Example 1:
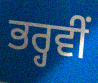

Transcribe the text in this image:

ਭਰ੍ਹਵੀਂ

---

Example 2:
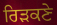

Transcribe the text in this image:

ਰਿੜਕਣੇ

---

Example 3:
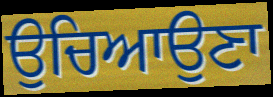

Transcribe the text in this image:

ਉਚਿਆਉਣਾ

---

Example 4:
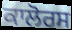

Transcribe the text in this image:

ਕਾਲੋਰਸ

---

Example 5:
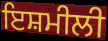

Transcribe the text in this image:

ਇਸ਼ਮੀਲੀ